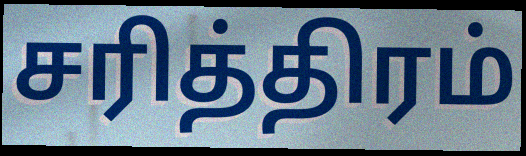
சரித்திரம்